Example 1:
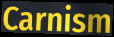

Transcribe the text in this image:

Carnism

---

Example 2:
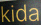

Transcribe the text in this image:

kida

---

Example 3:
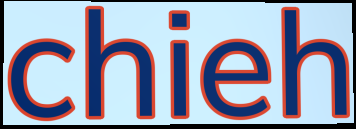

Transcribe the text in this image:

chieh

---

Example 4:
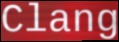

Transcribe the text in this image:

Clang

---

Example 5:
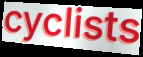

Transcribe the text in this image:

cyclists